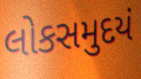
લોકસમુદયં